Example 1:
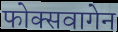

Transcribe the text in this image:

फोक्सवागेन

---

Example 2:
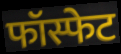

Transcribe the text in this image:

फॉस्फेट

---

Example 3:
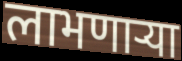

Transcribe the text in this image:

लाभणाऱ्या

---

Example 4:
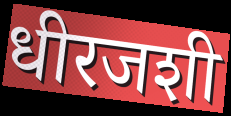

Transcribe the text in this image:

धीरजशी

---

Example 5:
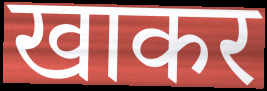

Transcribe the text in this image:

खाकर